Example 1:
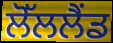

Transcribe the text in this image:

ਲੋੱਲਲੈਂਡ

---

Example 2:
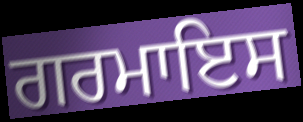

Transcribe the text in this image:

ਗਰਮਾਇਸ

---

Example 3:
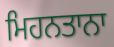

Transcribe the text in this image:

ਮਿਹਨਤਾਨਾ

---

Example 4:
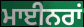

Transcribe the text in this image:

ਮਾਈਨਰਾਂ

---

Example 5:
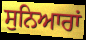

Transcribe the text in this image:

ਸੁਨਿਆਰਾਂ